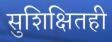
सुशिक्षितही